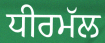
ਧੀਰਮੱਲ